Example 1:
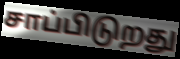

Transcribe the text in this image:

சாப்பிடுறது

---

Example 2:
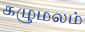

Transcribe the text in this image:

கழுமலம்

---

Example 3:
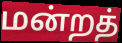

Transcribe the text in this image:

மன்றத்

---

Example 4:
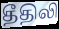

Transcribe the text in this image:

தீதிலி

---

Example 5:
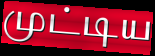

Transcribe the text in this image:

முட்டிய